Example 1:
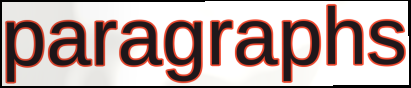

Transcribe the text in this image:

paragraphs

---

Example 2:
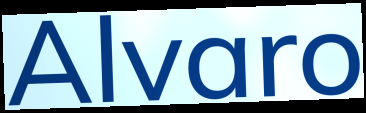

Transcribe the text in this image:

Alvaro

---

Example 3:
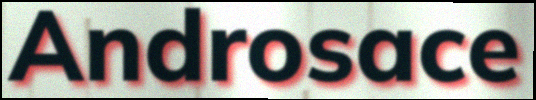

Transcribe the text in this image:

Androsace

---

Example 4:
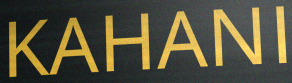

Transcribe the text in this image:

KAHANI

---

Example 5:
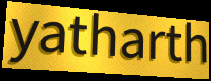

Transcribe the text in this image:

yatharth